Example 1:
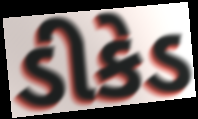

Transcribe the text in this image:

ડીકેડ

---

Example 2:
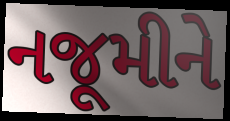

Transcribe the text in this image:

નજૂમીને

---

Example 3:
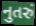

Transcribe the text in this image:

નુતરું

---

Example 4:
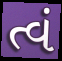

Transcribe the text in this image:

ત્વં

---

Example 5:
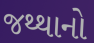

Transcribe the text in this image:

જથ્થાનો